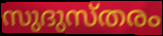
സുദുസ്തരം